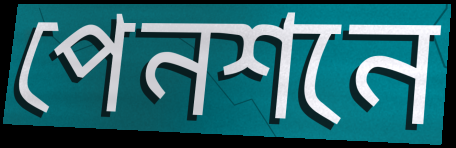
পেনশনে